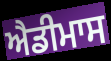
ਐਡੀਮਾਸ